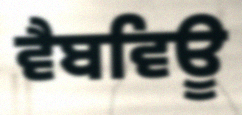
ਵੈਬਵਿਊ